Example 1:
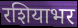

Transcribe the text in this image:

रशियाभर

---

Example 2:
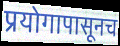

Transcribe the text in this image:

प्रयोगापासूनच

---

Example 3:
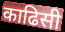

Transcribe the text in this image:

काढिसी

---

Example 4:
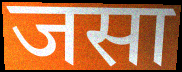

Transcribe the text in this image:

जसा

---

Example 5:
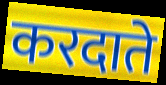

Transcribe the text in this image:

करदाते